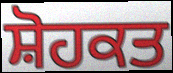
ਸ਼ੋਹਕਤ